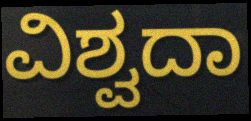
ವಿಶ್ವದಾ